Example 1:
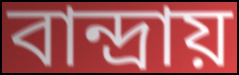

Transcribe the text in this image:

বান্দ্রায়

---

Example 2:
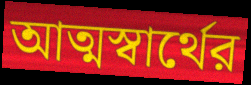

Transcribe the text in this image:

আত্মস্বার্থের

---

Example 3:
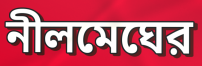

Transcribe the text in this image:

নীলমেঘের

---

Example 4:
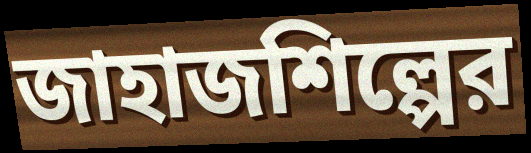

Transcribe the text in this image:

জাহাজশিল্পের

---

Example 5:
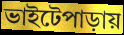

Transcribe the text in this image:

ভাইটেপাড়ায়